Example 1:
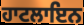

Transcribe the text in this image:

ਹਾਟਲਾਇਨ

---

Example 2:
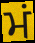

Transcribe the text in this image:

ਮਂ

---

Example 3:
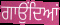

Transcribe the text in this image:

ਗਾਉਂਦਿਆਂ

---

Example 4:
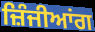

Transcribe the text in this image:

ਜ਼ਿੰਜੀਆਂਗ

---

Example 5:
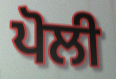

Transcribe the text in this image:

ਪੋਲੀ